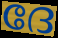
ദേ